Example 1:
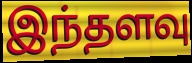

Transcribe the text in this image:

இந்தளவு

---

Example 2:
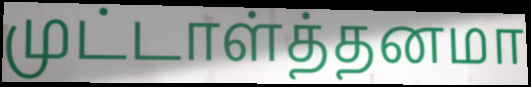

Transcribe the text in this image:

முட்டாள்த்தனமா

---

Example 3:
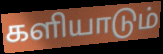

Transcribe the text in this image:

களியாடும்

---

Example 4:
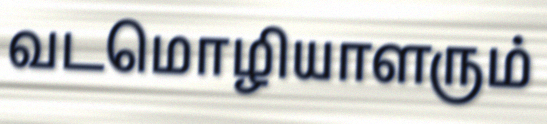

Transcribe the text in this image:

வடமொழியாளரும்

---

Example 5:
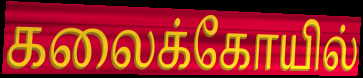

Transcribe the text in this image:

கலைக்கோயில்